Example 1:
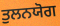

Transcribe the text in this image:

ਤੁਲਨਯੋਗ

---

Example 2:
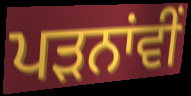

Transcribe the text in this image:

ਪੜਨਾਂਵੀਂ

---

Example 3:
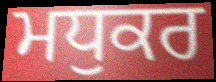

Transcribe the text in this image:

ਮਧੁਕਰ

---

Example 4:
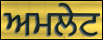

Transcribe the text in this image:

ਅਮਲੇਟ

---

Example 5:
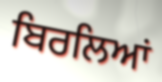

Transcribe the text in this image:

ਬਿਰਲਿਆਂ